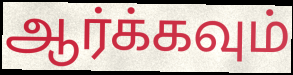
ஆர்க்கவும்